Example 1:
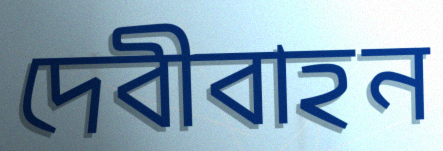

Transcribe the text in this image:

দেবীবাহন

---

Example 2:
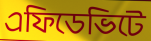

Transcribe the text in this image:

এফিডেভিটে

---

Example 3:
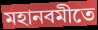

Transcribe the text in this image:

মহানবমীতে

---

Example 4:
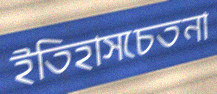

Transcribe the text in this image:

ইতিহাসচেতনা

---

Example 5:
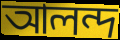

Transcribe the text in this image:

আলন্দ